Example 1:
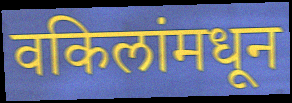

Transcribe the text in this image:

वकिलांमधून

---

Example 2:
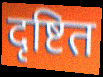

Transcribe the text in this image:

दृष्टित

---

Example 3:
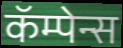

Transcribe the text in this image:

कॅम्पेन्स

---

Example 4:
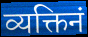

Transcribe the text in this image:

व्यक्तिनं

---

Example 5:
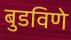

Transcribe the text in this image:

बुडविणे